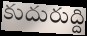
కుదురుద్ది